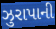
ઝુરાપાની